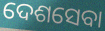
ଦେଶସେବା